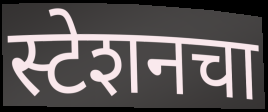
स्टेशनचा